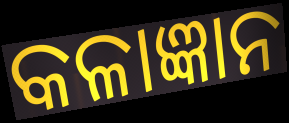
କଳାଜ୍ଞାନ